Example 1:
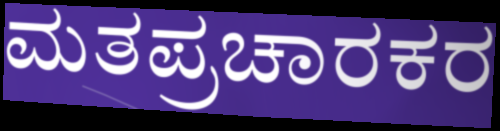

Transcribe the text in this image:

ಮತಪ್ರಚಾರಕರ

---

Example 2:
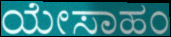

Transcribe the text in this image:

ಯೇಸಾಹಂ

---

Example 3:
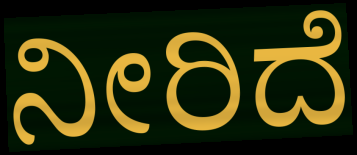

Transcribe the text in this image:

ನೀರಿದೆ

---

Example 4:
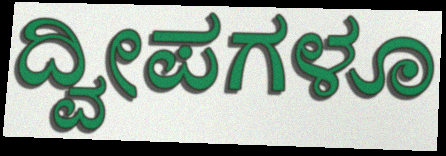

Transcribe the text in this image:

ದ್ವೀಪಗಳೂ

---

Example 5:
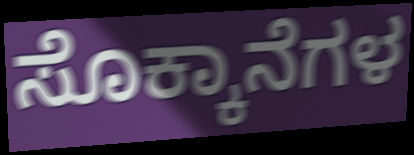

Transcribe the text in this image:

ಸೊಕ್ಕಾನೆಗಳ